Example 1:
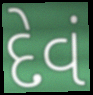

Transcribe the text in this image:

દેવં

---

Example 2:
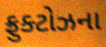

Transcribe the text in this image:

ફ્રુક્ટોઝના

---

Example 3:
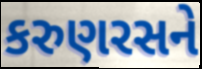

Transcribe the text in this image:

કરુણરસને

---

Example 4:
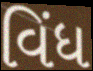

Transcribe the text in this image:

વિંધ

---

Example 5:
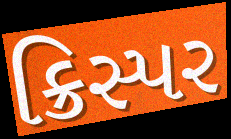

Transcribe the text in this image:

ક્રિસ્પર